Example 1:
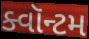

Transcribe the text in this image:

ક્વૉન્ટમ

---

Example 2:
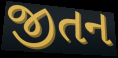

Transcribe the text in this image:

જીતન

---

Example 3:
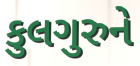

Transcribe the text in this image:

કુલગુરુને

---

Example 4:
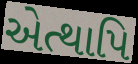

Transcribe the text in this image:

એત્થાપિ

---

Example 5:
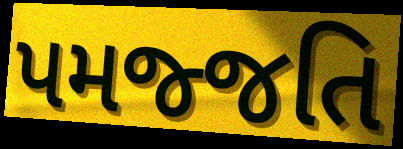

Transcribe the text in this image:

પમજ્જતિ